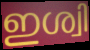
ഇശ്വി